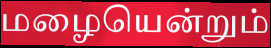
மழையென்றும்